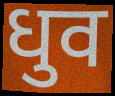
धुव